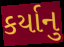
કર્યાનુ